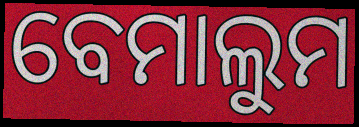
ବେମାଲୁମ